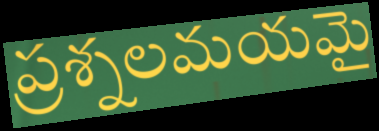
ప్రశ్నలమయమై